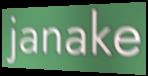
janake